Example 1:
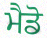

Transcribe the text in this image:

ਮੈਡੋ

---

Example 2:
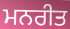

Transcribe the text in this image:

ਮਨਰੀਤ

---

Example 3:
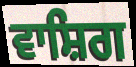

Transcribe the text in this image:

ਵਾਸ਼ਿਗ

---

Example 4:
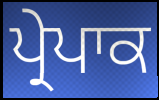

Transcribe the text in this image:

ਪ੍ਰੇਪਾਕ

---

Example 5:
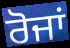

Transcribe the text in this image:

ਰੋਜਾਂ